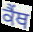
ਕੈਂਥ